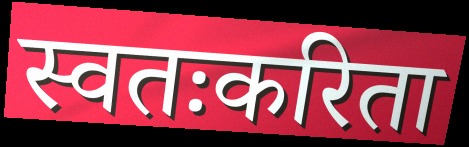
स्वतःकरिता